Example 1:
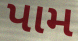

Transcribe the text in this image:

પામ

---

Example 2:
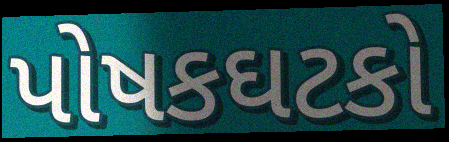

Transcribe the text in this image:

પોષકઘટકો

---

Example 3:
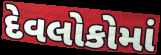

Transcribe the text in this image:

દેવલોકોમાં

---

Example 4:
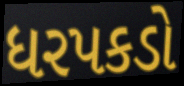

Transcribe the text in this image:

ધરપકડો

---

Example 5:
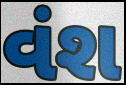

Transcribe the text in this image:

વંશ